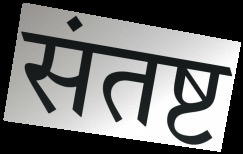
संतष्ट